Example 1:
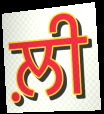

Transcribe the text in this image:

ਲ਼ੀ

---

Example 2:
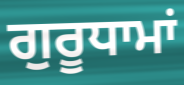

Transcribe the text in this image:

ਗੁਰੂਧਾਮਾਂ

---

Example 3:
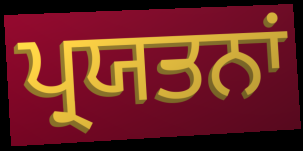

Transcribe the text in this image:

ਪ੍ਰਯਤਨਾਂ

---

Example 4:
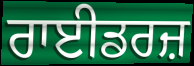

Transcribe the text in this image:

ਰਾਈਡਰਜ਼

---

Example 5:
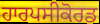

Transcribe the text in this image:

ਹਾਰਪਸੀਕੋਰਡ